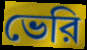
ভেরি